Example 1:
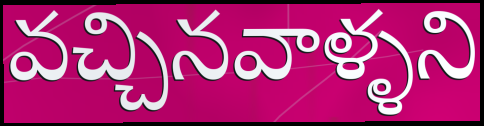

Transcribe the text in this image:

వచ్చినవాళ్ళని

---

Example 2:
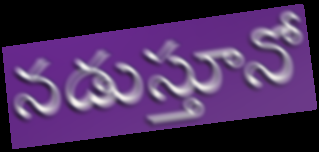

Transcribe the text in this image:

నడుస్తూనో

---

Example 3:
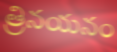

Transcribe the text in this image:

త్రినయనం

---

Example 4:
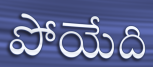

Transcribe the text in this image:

పోయేది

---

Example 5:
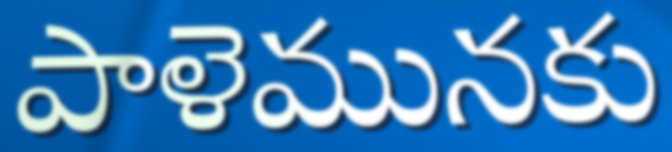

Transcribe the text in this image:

పాళెమునకు